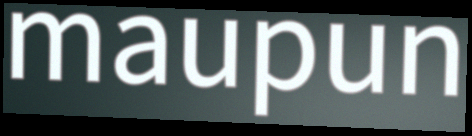
maupun